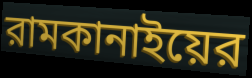
রামকানাইয়ের